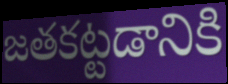
జతకట్టడానికి